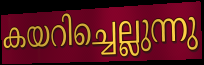
കയറിച്ചെല്ലുന്നു